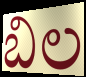
బిల